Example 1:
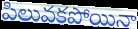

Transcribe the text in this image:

పిలువకపోయినా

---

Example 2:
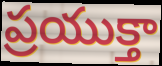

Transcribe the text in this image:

ప్రయుక్తా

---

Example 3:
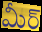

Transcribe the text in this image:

మీర్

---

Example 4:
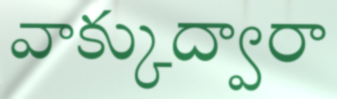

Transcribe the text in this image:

వాక్కుద్వారా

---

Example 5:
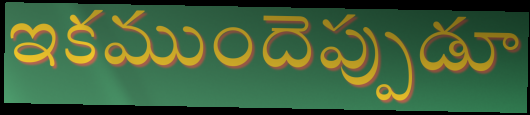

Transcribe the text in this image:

ఇకముందెప్పుడూ